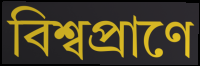
বিশ্বপ্রাণে